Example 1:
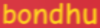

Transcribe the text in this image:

bondhu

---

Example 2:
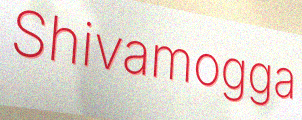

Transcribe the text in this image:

Shivamogga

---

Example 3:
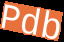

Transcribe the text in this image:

Pdb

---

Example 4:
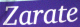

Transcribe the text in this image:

Zarate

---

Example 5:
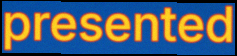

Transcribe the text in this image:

presented